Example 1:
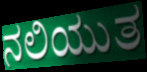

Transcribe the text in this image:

ನಲಿಯುತ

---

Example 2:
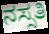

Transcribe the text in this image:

ನಸ್ಸತಿ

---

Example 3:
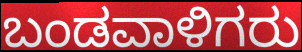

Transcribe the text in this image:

ಬಂಡವಾಳಿಗರು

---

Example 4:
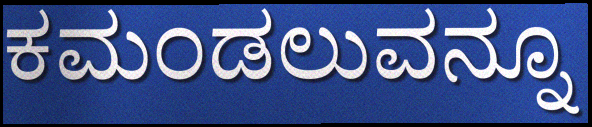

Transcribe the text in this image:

ಕಮಂಡಲುವನ್ನೂ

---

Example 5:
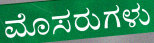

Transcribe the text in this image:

ಮೊಸರುಗಳು